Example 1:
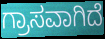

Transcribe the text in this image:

ಗ್ರಾಸವಾಗಿದೆ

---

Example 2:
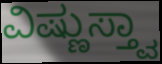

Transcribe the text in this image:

ವಿಷ್ಣುಸ್ತ್ವಾ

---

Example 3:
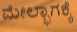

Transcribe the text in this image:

ಮೇಲ್ಭಾಗಕ್ಕೆ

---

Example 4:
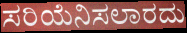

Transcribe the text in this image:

ಸರಿಯೆನಿಸಲಾರದು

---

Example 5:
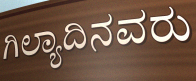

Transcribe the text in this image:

ಗಿಲ್ಯಾದಿನವರು